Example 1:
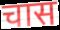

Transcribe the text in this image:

चास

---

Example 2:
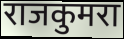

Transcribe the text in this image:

राजकुमरा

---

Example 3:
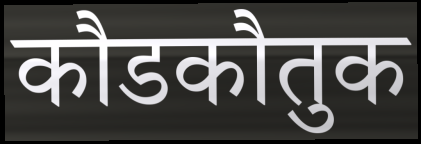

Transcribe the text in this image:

कौडकौतुक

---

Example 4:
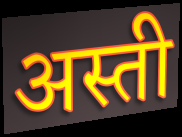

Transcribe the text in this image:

अस्ती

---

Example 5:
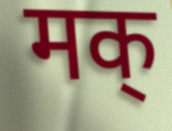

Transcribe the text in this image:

मक्